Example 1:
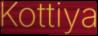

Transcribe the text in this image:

Kottiya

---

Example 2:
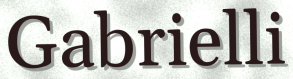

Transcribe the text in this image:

Gabrielli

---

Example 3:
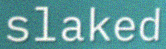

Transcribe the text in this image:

slaked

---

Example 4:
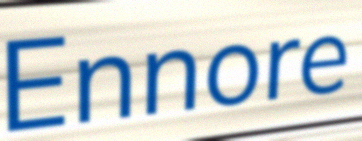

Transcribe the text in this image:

Ennore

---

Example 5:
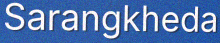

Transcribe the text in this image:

Sarangkheda